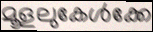
മൂളലുകേൾക്കേ